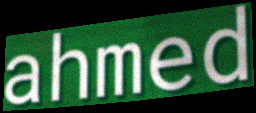
ahmed